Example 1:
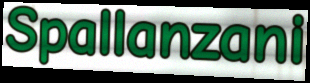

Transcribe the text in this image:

Spallanzani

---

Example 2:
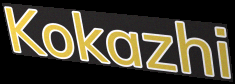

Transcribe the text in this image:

Kokazhi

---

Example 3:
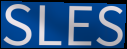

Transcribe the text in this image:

SLES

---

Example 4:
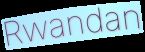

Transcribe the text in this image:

Rwandan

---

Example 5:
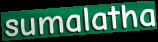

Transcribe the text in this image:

sumalatha